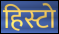
हिस्टो